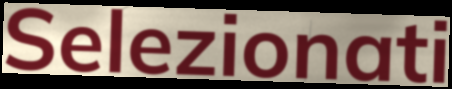
Selezionati